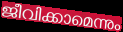
ജീവിക്കാമെന്നും